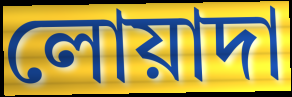
লোয়াদা